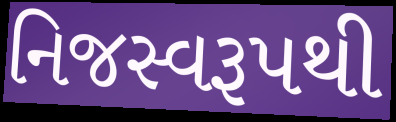
નિજસ્વરૂપથી